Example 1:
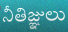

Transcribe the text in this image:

నీతిజ్ఞులు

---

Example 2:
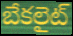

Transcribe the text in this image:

బేకలైట్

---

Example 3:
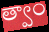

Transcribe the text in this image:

త్వాం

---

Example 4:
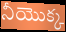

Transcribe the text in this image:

నీయొక్క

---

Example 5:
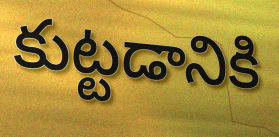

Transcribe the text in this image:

కుట్టడానికి